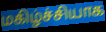
மகிழ்ச்சியாக